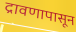
द्रावणापासून